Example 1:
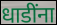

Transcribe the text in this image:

धाडींना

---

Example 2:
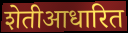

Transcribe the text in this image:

शेतीआधारित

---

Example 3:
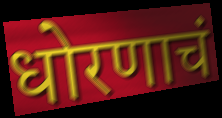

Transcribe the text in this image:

धोरणाचं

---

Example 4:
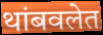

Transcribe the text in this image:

थांबवलेत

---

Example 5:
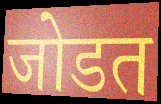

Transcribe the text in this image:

जोडत